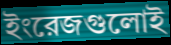
ইংরেজগুলোই